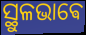
ସ୍ଥୁଳଭାଵେ